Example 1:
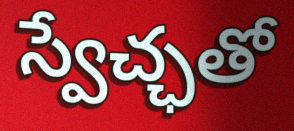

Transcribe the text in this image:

స్వేచ్ఛతో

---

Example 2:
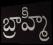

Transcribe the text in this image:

బ్రాహ్మీ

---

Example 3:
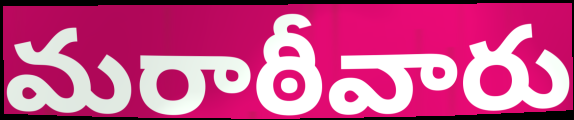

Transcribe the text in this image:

మరాఠీవారు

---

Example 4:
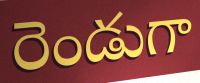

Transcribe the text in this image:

రెండుగా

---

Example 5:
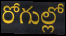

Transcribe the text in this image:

రోగుల్లో